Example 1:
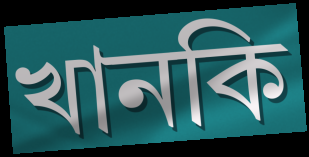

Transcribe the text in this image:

খানকি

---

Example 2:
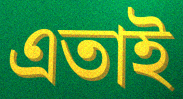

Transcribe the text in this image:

এতাই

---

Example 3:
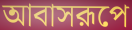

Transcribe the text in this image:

আবাসরূপে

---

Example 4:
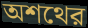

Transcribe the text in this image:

অশথের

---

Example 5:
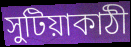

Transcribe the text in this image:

সুটিয়াকাঠী